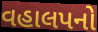
વહાલપનો